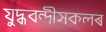
যুদ্ধবন্দীসকলৰ